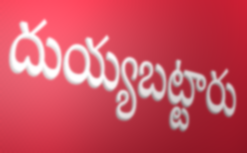
దుయ్యబట్టారు